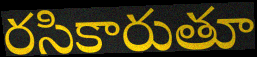
రసికారుతూ